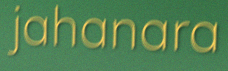
jahanara